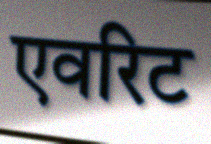
एवरिट